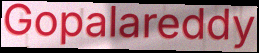
Gopalareddy